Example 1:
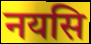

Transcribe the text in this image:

नयसि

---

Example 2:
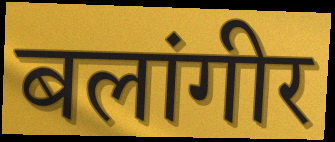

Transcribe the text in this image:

बलांगीर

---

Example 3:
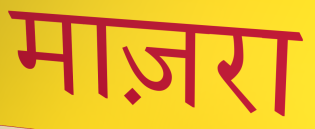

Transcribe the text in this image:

माज़रा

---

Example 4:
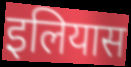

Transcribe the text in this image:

इलियास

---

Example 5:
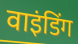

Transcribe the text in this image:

वाइंडिंग